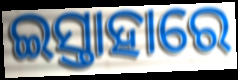
ଇସ୍ତାହାରେ